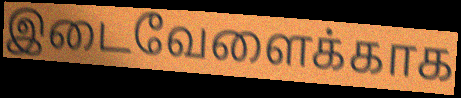
இடைவேளைக்காக